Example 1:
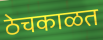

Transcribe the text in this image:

ठेचकाळत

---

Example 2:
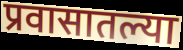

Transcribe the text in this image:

प्रवासातल्या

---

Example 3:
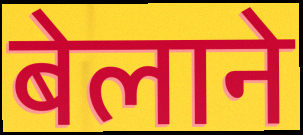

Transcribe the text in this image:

बेलाने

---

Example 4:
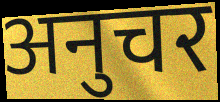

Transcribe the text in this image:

अनुचर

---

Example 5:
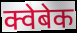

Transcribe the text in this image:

क्वेबेक